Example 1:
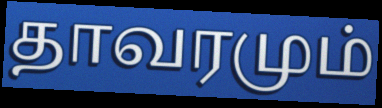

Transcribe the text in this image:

தாவரமும்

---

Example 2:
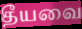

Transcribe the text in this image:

தீயவை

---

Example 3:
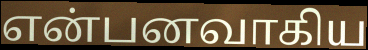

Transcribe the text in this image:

என்பனவாகிய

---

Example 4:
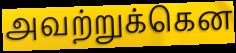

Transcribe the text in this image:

அவற்றுக்கென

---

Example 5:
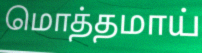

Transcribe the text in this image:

மொத்தமாய்